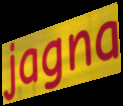
jagna